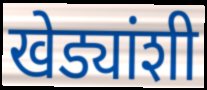
खेड्यांशी